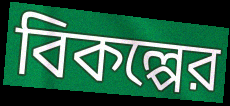
বিকল্পের